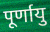
पूर्णायु